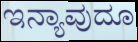
ಇನ್ಯಾವುದೂ